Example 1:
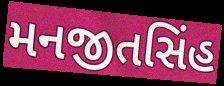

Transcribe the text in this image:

મનજીતસિંહ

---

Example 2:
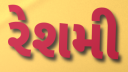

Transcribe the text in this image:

રેશમી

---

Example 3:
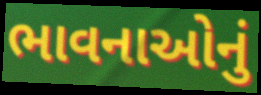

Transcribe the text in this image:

ભાવનાઓનું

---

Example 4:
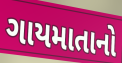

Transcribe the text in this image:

ગાયમાતાનો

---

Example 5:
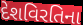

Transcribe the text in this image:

દેશવિરતિના